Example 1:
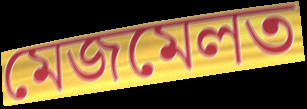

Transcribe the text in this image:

মেজমেলত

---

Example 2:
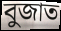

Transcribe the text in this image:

বুজাত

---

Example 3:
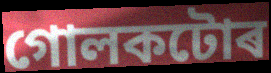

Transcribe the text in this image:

গোলকটোৰ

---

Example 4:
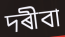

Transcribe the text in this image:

দৰীবা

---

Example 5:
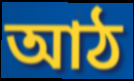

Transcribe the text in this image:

আঠ